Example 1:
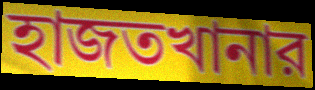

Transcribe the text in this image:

হাজতখানার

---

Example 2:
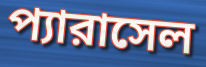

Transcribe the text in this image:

প্যারাসেল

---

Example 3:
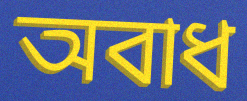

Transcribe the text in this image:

অবাধ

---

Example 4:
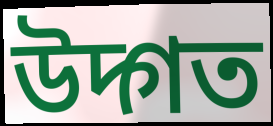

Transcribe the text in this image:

উদ্গত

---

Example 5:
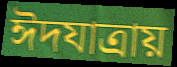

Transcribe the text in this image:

ঈদযাত্রায়